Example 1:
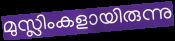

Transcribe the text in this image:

മുസ്ലിംകളായിരുന്നു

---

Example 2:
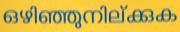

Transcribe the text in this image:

ഒഴിഞ്ഞുനില്ക്കുക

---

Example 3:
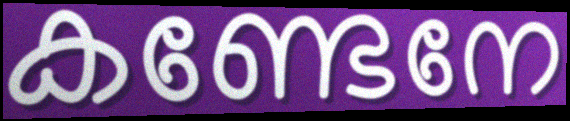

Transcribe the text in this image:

കണ്ടേനേ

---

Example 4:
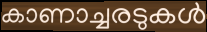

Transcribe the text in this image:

കാണാച്ചരടുകൾ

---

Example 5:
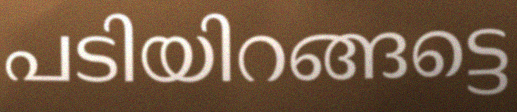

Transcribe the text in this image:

പടിയിറങ്ങട്ടെ